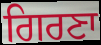
ਗਿਰਣਾ